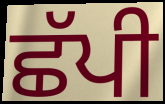
ਛੱਪੀ